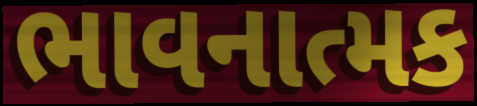
ભાવનાત્મક